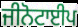
ਜੀਨੋਟਾਈਪ